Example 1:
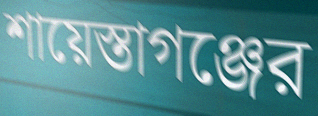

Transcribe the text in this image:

শায়েস্তাগঞ্জের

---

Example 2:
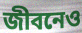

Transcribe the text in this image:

জীবনেও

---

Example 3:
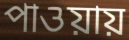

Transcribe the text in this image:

পাওয়ায়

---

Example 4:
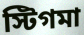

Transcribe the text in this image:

স্টিগমা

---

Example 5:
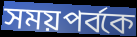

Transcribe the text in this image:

সময়পর্বকে